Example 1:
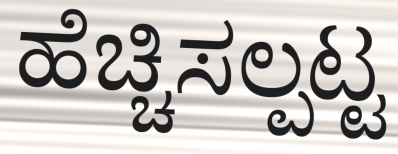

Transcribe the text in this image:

ಹೆಚ್ಚಿಸಲ್ಪಟ್ಟ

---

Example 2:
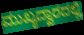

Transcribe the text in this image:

ಮುಖ್ಯದ್ವಾರದಲ್ಲಿ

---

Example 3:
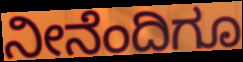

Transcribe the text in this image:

ನೀನೆಂದಿಗೂ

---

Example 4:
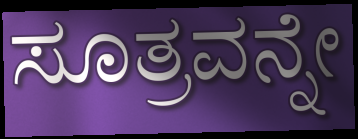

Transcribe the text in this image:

ಸೂತ್ರವನ್ನೇ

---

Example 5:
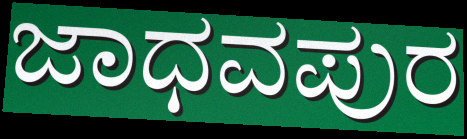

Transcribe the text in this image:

ಜಾಧವಪುರ